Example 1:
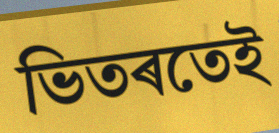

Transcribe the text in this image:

ভিতৰতেই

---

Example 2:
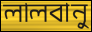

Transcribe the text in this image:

লালবানু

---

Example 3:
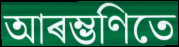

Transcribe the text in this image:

আৰম্ভণিতে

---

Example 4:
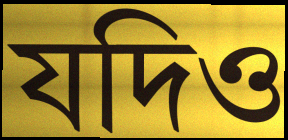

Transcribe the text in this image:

যদিও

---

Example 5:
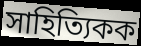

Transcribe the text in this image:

সাহিত্যিকক